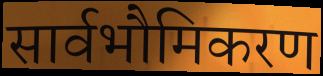
सार्वभौमिकरण